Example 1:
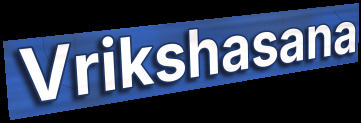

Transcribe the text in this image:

Vrikshasana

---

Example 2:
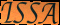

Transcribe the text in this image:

ISSA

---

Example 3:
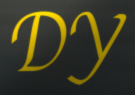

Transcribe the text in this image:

DY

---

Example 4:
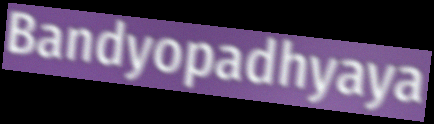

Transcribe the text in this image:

Bandyopadhyaya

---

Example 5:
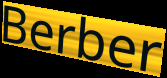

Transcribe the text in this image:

Berber